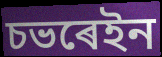
চভৰেইন